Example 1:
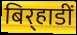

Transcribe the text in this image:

बिर्‍हाडीं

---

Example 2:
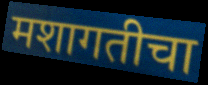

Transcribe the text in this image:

मशागतीचा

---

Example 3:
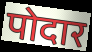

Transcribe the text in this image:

पोदार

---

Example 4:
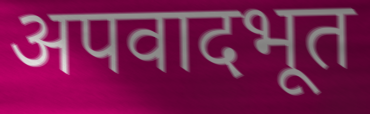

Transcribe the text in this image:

अपवादभूत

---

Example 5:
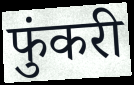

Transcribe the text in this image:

फुंकरी